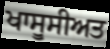
ਖਾਸੂਸੀਅਤ